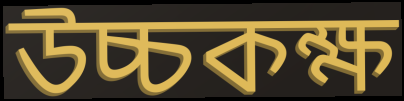
উচ্চকক্ষ